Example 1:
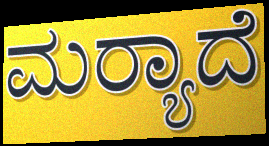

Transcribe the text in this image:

ಮರ‍್ಯಾದೆ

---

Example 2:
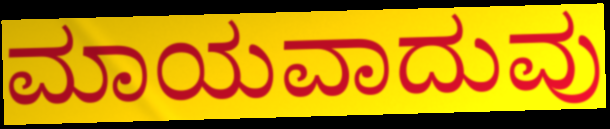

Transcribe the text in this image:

ಮಾಯವಾದುವು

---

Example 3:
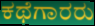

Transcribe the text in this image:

ಕಥೆಗಾರರು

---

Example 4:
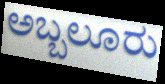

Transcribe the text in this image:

ಅಬ್ಬಲೂರು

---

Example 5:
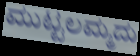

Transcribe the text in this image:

ಮುಟ್ಟಲಮ್ಮದು